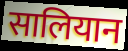
सालियान